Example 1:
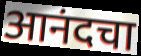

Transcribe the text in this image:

आनंदचा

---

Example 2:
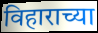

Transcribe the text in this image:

विहाराच्या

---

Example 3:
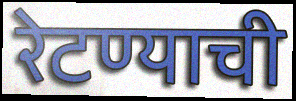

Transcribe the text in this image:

रेटण्याची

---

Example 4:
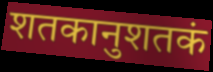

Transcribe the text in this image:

शतकानुशतकं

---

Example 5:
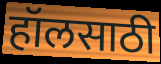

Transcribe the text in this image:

हॉलसाठी